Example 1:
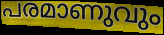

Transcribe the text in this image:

പരമാണുവും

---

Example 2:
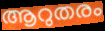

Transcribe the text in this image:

ആറുതരം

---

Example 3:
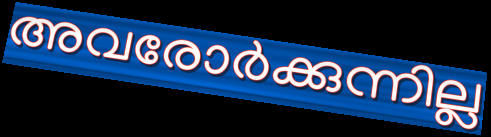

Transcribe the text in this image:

അവരോർക്കുന്നില്ല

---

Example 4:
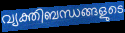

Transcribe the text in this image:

വ്യക്തിബന്ധങ്ങളുടെ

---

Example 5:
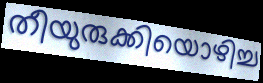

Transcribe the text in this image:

തീയുരുക്കിയൊഴിച്ച